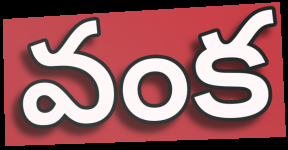
వంక